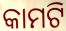
କାମଟି